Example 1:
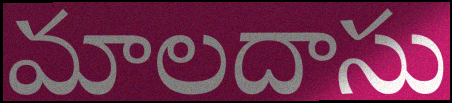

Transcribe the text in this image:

మాలదాసు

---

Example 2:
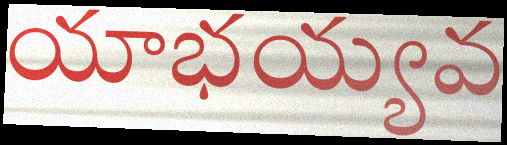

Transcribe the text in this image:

యాభయ్యవ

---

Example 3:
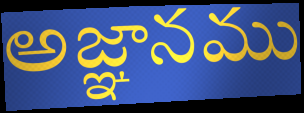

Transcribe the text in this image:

అజ్ఞానము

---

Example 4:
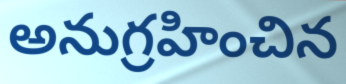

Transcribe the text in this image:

అనుగ్రహించిన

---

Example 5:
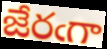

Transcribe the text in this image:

జేరఁగా